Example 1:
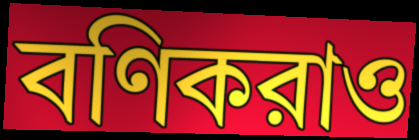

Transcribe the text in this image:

বণিকরাও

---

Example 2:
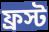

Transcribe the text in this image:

ফ্রস্ট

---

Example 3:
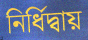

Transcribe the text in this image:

নির্ধিদ্বায়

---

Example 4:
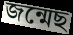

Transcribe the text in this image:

জন্মেছ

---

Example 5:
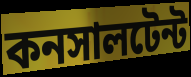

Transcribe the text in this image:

কনসালটেন্ট